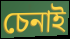
চেনাই